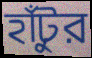
হাঁটুর